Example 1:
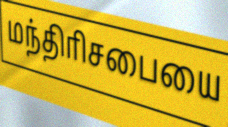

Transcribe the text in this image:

மந்திரிசபையை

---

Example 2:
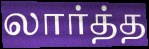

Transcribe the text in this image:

லார்த்த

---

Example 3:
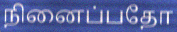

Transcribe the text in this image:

நினைப்பதோ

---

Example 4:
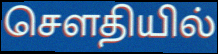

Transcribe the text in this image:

செளதியில்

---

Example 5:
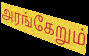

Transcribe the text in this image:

அரங்கேறும்